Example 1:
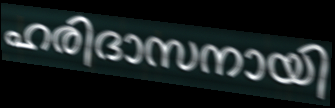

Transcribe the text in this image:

ഹരിദാസനായി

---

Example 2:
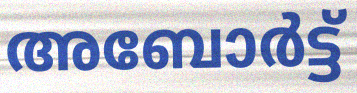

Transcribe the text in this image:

അബോർട്ട്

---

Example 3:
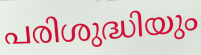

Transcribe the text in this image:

പരിശുദ്ധിയും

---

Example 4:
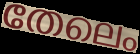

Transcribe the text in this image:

തേലെം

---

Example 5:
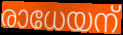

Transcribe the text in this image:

രാധേയന്